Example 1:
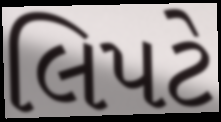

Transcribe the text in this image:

લિપટે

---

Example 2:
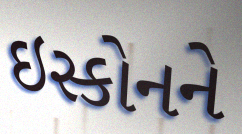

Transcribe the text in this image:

ઇસ્કોનને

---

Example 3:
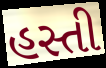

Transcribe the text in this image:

હસ્તી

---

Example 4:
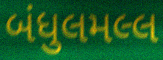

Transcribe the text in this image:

બંધુલમલ્લ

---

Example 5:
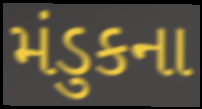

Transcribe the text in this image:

મંડુકના